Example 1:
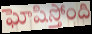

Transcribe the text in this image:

ఘోషిస్తోంది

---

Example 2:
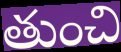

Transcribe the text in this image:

తుంచి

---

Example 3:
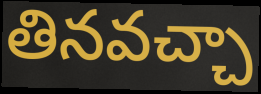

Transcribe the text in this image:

తినవచ్చా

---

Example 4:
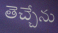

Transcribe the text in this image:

తెచ్చేను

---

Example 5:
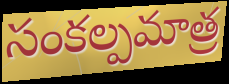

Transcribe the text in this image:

సంకల్పమాత్ర